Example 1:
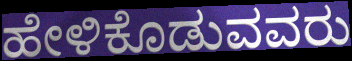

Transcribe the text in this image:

ಹೇಳಿಕೊಡುವವರು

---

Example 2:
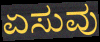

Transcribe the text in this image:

ಏಸುವು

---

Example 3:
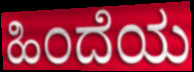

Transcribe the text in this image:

ಹಿಂದೆಯ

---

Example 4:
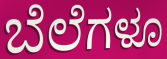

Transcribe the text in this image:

ಬೆಲೆಗಳೂ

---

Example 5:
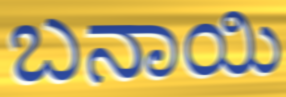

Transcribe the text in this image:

ಬನಾಯಿ